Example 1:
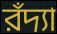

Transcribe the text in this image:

রঁদ্যা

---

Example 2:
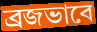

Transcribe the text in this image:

ব্রজভাবে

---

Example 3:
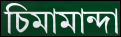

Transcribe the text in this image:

চিমামান্দা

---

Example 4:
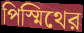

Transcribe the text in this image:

পিস্মিথের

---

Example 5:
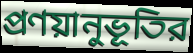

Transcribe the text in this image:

প্রণয়ানুভূতির